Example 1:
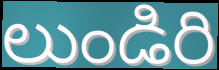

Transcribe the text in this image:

లుండిరి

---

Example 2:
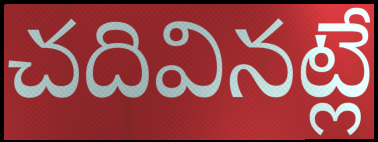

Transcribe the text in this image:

చదివినట్లే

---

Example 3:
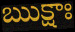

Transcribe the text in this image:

ఋక్షాః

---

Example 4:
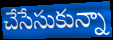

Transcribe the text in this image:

చేసేసుకున్నా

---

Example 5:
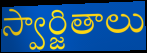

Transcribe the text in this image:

స్వార్జితాలు